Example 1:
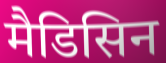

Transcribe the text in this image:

मैडिसिन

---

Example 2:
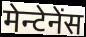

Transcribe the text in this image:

मेन्टेनेंस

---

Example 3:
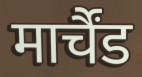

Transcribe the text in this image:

मार्चैंड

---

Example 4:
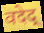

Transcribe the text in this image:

वदेद्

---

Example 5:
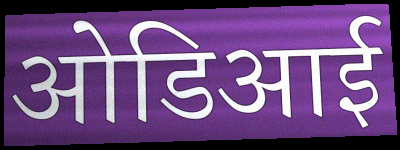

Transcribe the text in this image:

ओडिआई